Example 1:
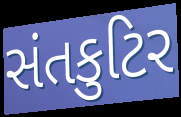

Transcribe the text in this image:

સંતકુટિર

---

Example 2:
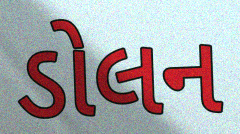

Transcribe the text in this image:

ડોલન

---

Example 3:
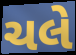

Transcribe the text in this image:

ચલે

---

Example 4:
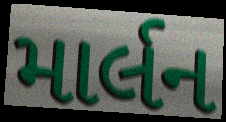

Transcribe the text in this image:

માર્લન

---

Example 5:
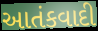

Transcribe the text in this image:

આતંકવાદી